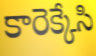
కారెక్కేసి